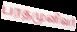
பரதமுனிவர்